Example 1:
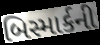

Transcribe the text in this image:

બિસ્માર્કની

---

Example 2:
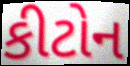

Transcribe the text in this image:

કીટોન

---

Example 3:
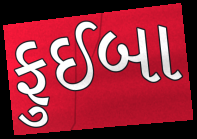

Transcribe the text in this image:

ફુઈબા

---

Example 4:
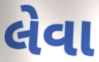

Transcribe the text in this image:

લેવા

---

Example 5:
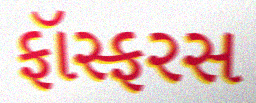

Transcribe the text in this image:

ફૉસ્ફરસ